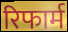
रिफार्म